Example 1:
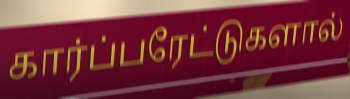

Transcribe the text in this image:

கார்ப்பரேட்டுகளால்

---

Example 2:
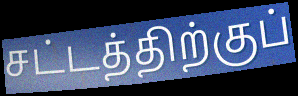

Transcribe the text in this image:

சட்டத்திற்குப்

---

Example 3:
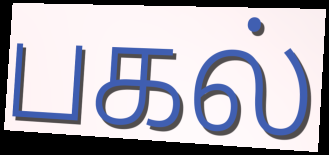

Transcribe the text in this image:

பகல்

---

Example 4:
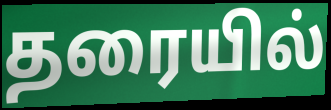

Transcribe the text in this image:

தரையில்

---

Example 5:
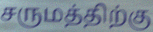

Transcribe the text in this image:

சருமத்திற்கு